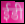
ईडी